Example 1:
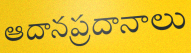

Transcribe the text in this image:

ఆదానప్రదానాలు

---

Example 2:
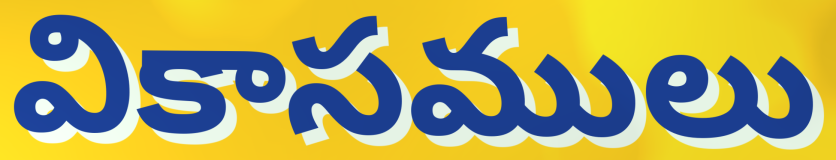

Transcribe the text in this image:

వికాసములు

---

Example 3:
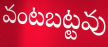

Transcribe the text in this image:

వంటబట్టవు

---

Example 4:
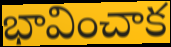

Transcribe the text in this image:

భావించాక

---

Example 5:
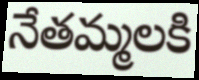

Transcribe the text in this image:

నేతమ్మలకి